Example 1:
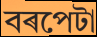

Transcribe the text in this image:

বৰপেটা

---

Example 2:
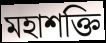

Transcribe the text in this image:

মহাশক্তি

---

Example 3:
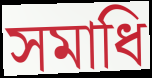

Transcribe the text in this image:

সমাধি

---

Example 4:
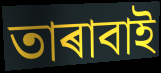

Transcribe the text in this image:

তাৰাবাই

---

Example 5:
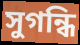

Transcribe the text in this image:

সুগন্ধি